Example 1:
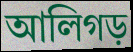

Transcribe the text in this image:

আলিগড়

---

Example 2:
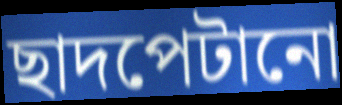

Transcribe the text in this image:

ছাদপেটানো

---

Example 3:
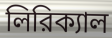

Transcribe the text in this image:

লিরিক্যাল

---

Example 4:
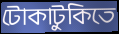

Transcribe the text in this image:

টোকাটুকিতে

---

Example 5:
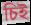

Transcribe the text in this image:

চিই